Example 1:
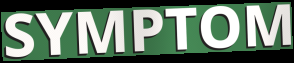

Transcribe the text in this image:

SYMPTOM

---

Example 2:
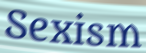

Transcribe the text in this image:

Sexism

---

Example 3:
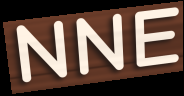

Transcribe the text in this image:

NNE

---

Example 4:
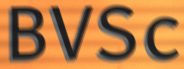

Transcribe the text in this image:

BVSc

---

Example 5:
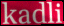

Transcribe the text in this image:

kadli